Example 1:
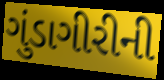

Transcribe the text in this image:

ગુંડાગીરીની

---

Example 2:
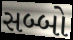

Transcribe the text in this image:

સબ્બો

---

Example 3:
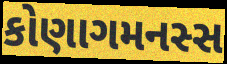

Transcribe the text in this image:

કોણાગમનસ્સ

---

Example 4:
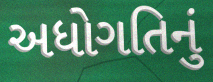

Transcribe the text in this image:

અધોગતિનું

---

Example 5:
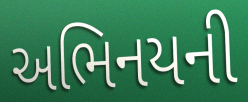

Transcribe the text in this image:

અભિનયની